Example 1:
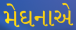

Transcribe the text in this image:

મેઘનાએ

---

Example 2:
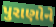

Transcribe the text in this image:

પુરાણોને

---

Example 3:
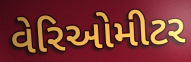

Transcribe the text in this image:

વેરિઓમીટર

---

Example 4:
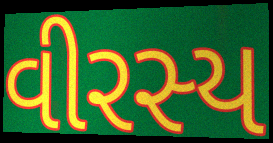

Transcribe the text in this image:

વીરસ્ય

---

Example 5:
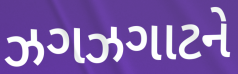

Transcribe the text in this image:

ઝગઝગાટને